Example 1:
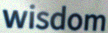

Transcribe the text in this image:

wisdom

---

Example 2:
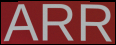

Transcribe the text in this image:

ARR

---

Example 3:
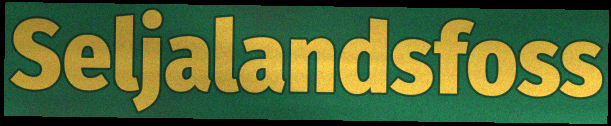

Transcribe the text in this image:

Seljalandsfoss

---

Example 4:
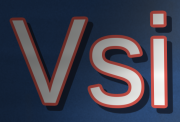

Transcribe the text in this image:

Vsi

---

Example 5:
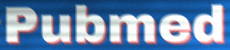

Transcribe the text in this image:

Pubmed